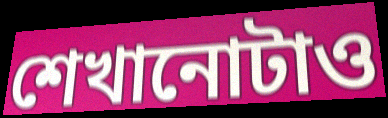
শেখানোটাও